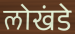
लोखंडे